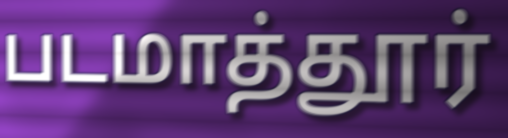
படமாத்தூர்